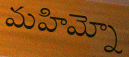
మహిమ్నో